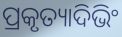
ପ୍ରକୃତ୍ୟାଦିଭିଂ